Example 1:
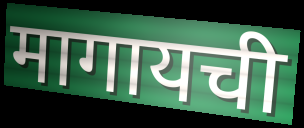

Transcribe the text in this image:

मागायची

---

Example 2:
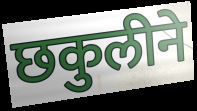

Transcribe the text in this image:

छकुलीने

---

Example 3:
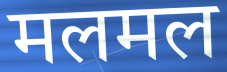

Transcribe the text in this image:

मलमल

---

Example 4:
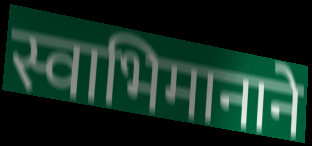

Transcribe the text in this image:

स्वाभिमानाने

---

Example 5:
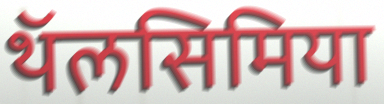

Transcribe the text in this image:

थॅलसिमिया